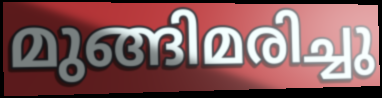
മുങ്ങിമരിച്ചു